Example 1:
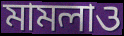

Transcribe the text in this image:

মামলাও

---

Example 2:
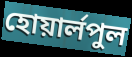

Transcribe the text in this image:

হোয়ার্লপুল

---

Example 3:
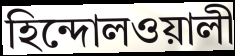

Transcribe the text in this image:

হিন্দোলওয়ালী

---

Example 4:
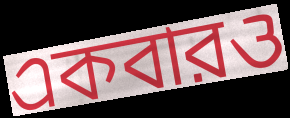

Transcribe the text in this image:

একবারও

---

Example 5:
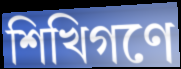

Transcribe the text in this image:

শিখিগণে